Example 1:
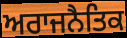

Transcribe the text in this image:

ਅਰਾਜਨੈਤਿਕ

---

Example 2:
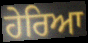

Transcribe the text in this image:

ਹੇਰਿਆ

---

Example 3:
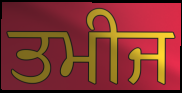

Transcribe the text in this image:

ਤਮੀਜ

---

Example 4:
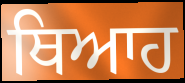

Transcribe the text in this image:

ਥਿਆਹ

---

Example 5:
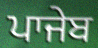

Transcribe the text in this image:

ਪਾਜੇਬ